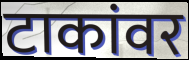
टाकांवर